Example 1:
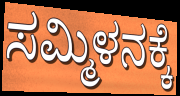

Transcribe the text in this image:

ಸಮ್ಮಿಳನಕ್ಕೆ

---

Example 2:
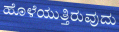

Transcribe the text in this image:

ಹೊಳೆಯುತ್ತಿರುವುದು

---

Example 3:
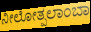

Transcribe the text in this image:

ನೀಲೋತ್ಪಲಾಂಬಾ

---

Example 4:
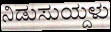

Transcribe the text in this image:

ನಿಡುಸುಯ್ದಳು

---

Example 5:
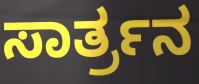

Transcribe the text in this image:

ಸಾರ್ತ್ರನ